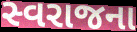
સ્વરાજના